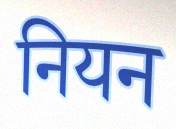
नियन